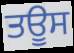
ਤਊਸ